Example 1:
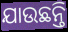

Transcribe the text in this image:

ଯାଉଛନ୍ତି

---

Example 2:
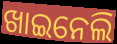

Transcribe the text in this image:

ଖାଇନେଲି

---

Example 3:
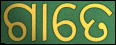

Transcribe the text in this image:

ଗାତେ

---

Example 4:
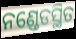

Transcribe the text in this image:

ନଣ୍ଡେଡସ୍ଥିତ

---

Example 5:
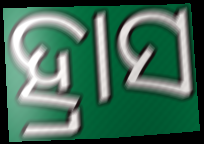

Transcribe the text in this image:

ହ୍ରାସ